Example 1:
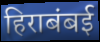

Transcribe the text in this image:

हिराबंबई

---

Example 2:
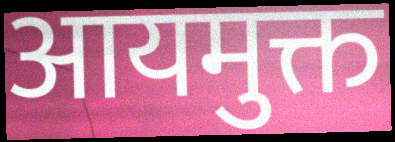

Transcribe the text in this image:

आयमुक्त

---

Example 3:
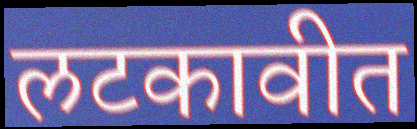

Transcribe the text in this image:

लटकावीत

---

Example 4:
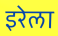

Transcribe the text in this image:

इरेला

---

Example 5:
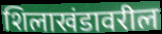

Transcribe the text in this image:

शिलाखंडावरील